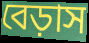
বেড়াস